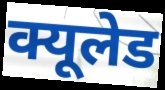
क्यूलेड